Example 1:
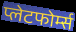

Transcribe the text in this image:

प्लेटफोर्म्स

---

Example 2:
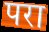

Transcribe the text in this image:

परा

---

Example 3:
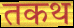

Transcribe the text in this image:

तकथ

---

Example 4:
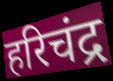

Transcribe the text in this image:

हरिचंद्र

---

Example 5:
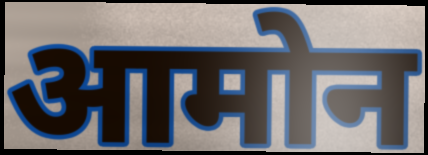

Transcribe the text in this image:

आमोन